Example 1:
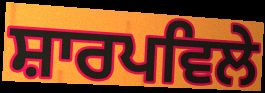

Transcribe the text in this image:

ਸ਼ਾਰਪਵਿਲੇ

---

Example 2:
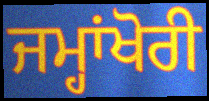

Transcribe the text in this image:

ਜਮ੍ਹਾਂਖੋਰੀ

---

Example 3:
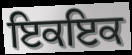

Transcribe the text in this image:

ਇਕਇਕ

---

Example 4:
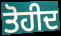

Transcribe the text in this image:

ਤੋਹੀਦ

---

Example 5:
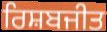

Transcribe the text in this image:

ਰਿਸ਼ਬਜੀਤ